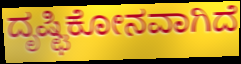
ದೃಷ್ಟಿಕೋನವಾಗಿದೆ